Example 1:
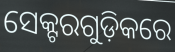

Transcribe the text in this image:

ସେକ୍ଟରଗୁଡ଼ିକରେ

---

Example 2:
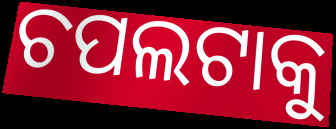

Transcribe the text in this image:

ଚପଲଟାକୁ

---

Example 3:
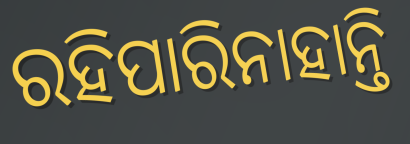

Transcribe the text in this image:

ରହିପାରିନାହାନ୍ତି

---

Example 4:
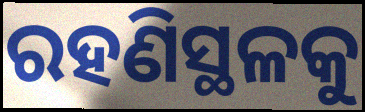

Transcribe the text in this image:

ରହଣିସ୍ଥଳକୁ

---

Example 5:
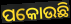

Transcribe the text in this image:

ପକୋଉଛି